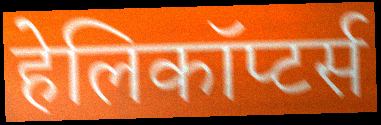
हेलिकॉप्टर्स